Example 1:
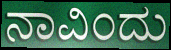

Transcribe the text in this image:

ನಾವಿಂದು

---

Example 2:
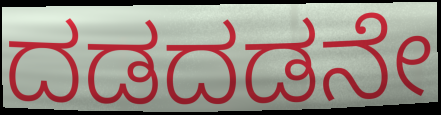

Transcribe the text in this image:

ದಡದಡನೇ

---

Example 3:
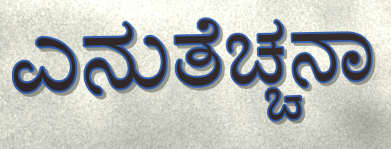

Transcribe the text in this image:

ಎನುತೆಚ್ಚನಾ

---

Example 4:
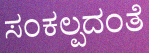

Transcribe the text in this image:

ಸಂಕಲ್ಪದಂತೆ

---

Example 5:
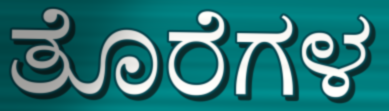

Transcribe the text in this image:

ತೊರೆಗಳ